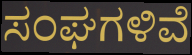
ಸಂಘಗಳಿವೆ